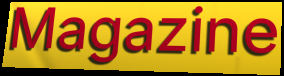
Magazine